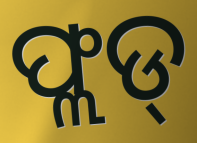
ଫ୍ଲଡ୍